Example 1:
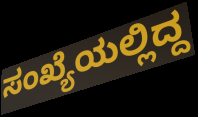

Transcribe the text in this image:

ಸಂಖ್ಯೆಯಲ್ಲಿದ್ದ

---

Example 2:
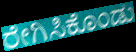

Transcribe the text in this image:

ರೇಗಿಸಿಕೊಂಡು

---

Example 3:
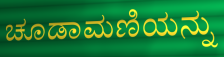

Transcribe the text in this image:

ಚೂಡಾಮಣಿಯನ್ನು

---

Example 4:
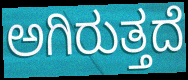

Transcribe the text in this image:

ಅಗಿರುತ್ತದೆ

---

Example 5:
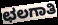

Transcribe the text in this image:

ಛಲಗಾತಿ